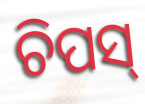
ଚିପସ୍